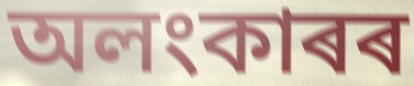
অলংকাৰৰ